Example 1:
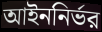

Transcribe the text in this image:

আইননির্ভর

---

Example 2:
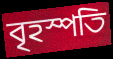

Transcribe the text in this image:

বৃহস্পতি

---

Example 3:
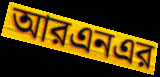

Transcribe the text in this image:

আরএনএর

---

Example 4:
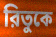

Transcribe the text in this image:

রিতুকে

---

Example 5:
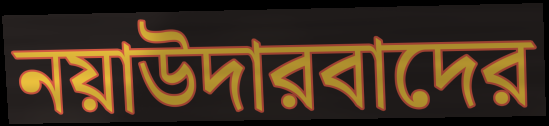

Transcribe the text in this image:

নয়াউদারবাদের